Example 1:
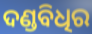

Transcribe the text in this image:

ଦଣ୍ଡବିଧିର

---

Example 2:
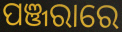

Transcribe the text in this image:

ପଞ୍ଜରାରେ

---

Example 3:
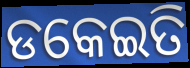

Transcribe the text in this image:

ଡକେଇତି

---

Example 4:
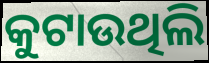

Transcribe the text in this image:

କୁଟାଉଥିଲି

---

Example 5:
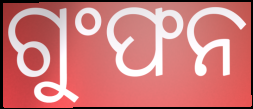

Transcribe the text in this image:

ଗୁଂଫନ